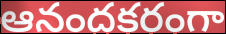
ఆనందకరంగా